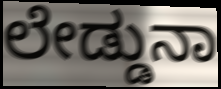
ಲೇಡ್ಡುನಾ